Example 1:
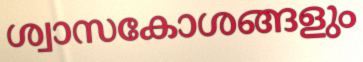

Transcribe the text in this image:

ശ്വാസകോശങ്ങളും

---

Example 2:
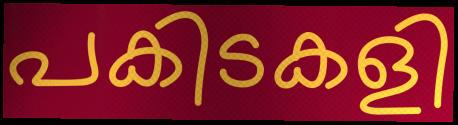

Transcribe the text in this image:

പകിടകളി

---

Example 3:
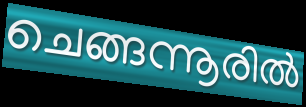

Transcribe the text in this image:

ചെങ്ങന്നൂരിൽ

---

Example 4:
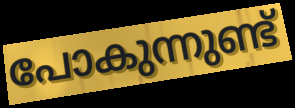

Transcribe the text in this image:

പോകുന്നുണ്ട്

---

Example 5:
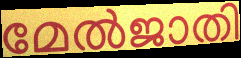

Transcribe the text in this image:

മേൽജാതി